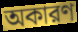
অকারণ